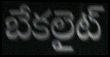
బేకలైట్